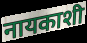
नायकाशी